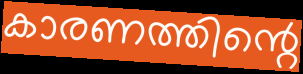
കാരണത്തിന്റെ